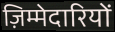
ज़िम्मेदारियों